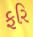
ફરિ